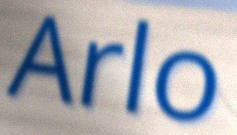
Arlo